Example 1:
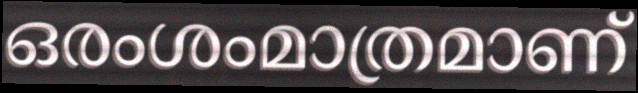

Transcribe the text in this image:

ഒരംശംമാത്രമാണ്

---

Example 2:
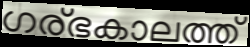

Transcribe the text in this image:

ഗര്ഭകാലത്ത്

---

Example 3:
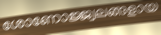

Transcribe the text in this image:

ശോണോജ്ജ്വലങ്ങളായ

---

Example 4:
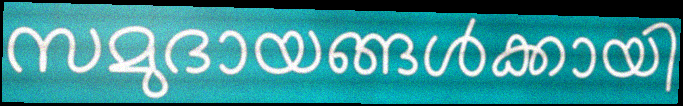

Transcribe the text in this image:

സമുദായങ്ങൾക്കായി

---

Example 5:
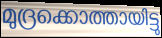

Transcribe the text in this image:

മുദ്രക്കൊത്തായിട്ടു